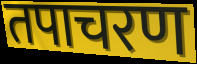
तपाचरण